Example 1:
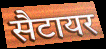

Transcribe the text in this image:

सैटायर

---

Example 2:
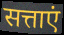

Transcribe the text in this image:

सत्ताएं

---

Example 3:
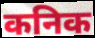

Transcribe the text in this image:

कनिक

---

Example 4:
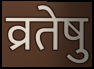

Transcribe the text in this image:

व्रतेषु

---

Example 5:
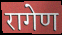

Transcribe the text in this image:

रागेण